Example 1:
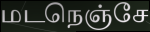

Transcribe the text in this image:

மடநெஞ்சே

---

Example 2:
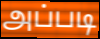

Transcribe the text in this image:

அப்படி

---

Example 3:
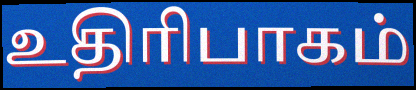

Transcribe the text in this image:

உதிரிபாகம்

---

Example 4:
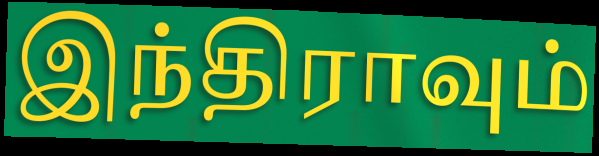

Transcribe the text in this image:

இந்திராவும்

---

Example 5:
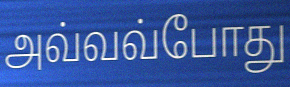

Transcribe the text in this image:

அவ்வவ்போது